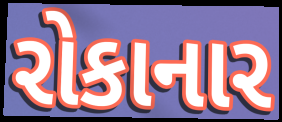
રોકાનાર